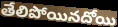
తేలిపోయినదోయి